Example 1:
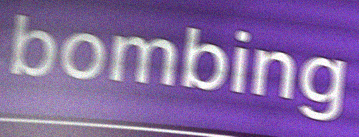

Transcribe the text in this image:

bombing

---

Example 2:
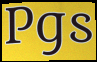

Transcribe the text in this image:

Pgs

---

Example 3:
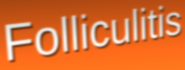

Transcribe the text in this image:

Folliculitis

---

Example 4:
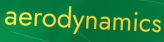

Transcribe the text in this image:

aerodynamics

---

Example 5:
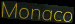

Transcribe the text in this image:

Monaco